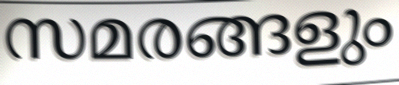
സമരങ്ങളും